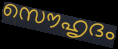
സൌഹൃദം